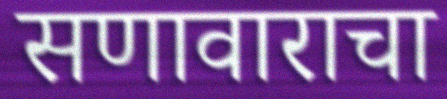
सणावाराचा